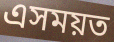
এসময়ত